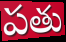
పతు